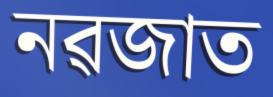
নৱজাত